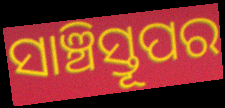
ସାଞ୍ଚିସ୍ତୂପର